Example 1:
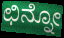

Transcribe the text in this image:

ಛಿನ್ನೋ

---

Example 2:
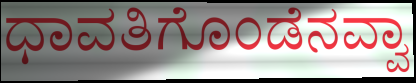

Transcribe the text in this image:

ಧಾವತಿಗೊಂಡೆನವ್ವಾ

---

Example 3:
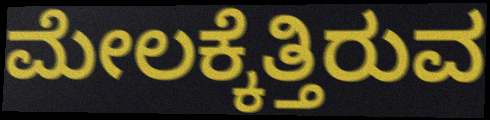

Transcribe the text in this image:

ಮೇಲಕ್ಕೆತ್ತಿರುವ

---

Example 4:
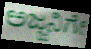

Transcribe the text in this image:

ಅಜ್ಜನಿಗೇ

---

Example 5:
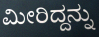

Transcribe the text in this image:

ಮೀರಿದ್ದನ್ನು